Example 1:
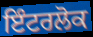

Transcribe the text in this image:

ਇੰਟਰਲੋਕ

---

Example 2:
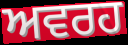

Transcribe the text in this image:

ਅਵਰਹ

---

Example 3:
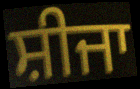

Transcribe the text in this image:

ਸ਼ੀਜਾ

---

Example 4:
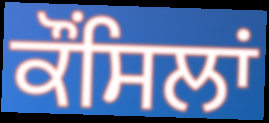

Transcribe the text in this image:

ਕੌਂਸਿਲਾਂ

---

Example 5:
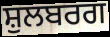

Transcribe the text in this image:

ਸ਼ੁਲਬਰਗ